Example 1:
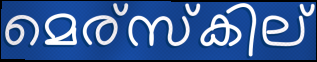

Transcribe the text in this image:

മെര്സ്കില്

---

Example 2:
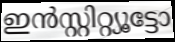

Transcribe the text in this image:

ഇൻസ്റ്റിറ്റ്യൂട്ടോ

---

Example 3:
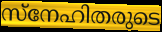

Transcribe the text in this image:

സ്നേഹിതരുടെ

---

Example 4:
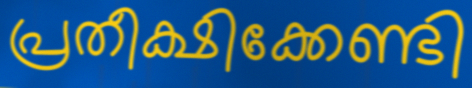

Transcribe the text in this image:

പ്രതീക്ഷിക്കേണ്ടി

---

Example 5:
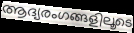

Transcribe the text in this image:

ആദ്യരംഗങ്ങളിലൂടെ